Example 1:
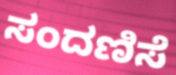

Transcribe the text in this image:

ಸಂದಣಿಸೆ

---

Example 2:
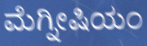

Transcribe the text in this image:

ಮೆಗ್ನೀಷಿಯಂ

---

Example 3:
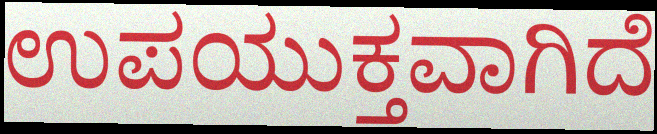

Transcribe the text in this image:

ಉಪಯುಕ್ತವಾಗಿದೆ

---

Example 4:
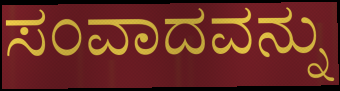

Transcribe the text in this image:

ಸಂವಾದವನ್ನು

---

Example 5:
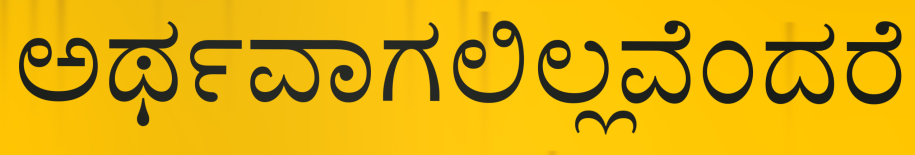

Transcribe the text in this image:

ಅರ್ಥವಾಗಲಿಲ್ಲವೆಂದರೆ